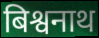
बिश्वनाथ